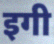
इगी